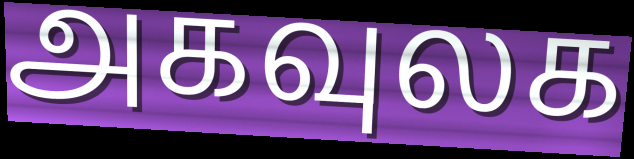
அகவுலக